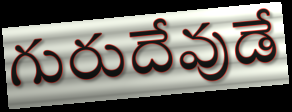
గురుదేవుడే